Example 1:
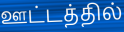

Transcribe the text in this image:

ஊட்டத்தில்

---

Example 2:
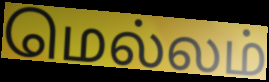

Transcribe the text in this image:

மெல்லம்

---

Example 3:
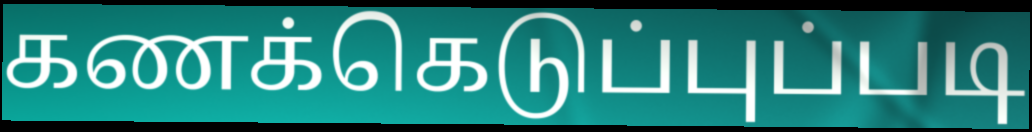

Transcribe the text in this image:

கணக்கெடுப்புப்படி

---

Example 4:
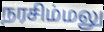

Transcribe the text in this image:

நரசிம்மலு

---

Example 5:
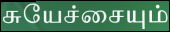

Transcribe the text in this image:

சுயேச்சையும்